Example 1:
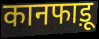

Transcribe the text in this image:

कानफाड़ू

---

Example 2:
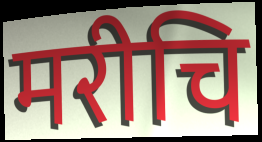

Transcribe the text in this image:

मरीचि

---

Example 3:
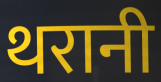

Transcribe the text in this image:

थरानी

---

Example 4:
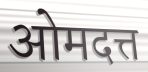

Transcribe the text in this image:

ओमदत्त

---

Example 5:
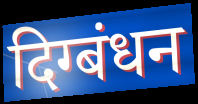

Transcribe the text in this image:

दिग्बंधन